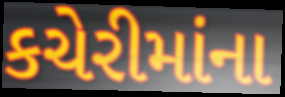
કચેરીમાંના